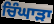
ਚਿੰਘਾੜਾ